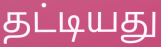
தட்டியது